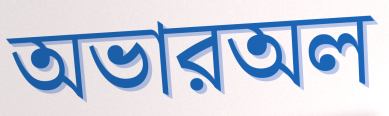
অভারঅল